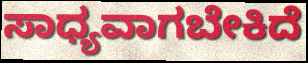
ಸಾಧ್ಯವಾಗಬೇಕಿದೆ